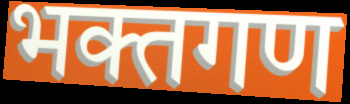
भक्तगण